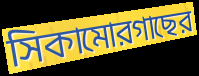
সিকামোরগাছের